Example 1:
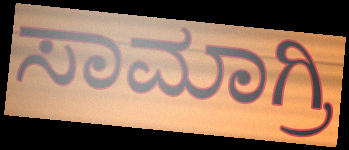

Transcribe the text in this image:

ಸಾಮಾಗ್ರಿ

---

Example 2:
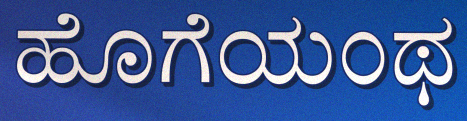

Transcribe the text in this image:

ಹೊಗೆಯಂಥ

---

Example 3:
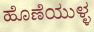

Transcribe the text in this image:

ಹೊಣೆಯುಳ್ಳ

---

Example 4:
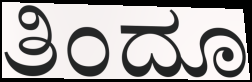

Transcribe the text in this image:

ತಿಂದೂ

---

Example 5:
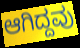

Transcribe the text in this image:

ಆಗಿದ್ದವು